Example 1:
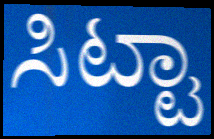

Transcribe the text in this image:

ಸಿಟ್ಟಾ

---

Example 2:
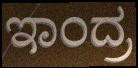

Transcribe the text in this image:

ಇಾಂದ್ರ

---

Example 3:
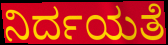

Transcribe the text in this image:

ನಿರ್ದಯತೆ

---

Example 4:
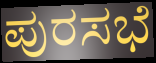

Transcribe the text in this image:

ಪುರಸಭೆ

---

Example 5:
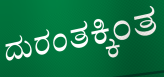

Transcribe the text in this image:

ದುರಂತಕ್ಕಿಂತ